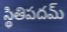
స్థితిపదమ్